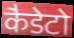
कैडेटो